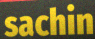
sachin